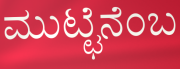
ಮುಟ್ಟೆನೆಂಬ